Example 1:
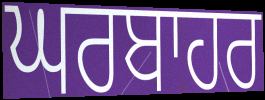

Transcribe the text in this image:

ਘਰਬਾਹਰ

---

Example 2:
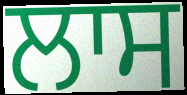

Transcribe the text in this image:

ਲਾਸ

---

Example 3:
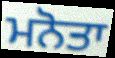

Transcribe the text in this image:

ਮਨੋਤਾ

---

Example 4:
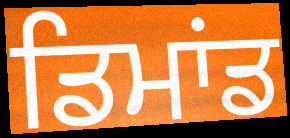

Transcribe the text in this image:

ਡਿਮਾਂਡ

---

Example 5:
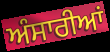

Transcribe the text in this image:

ਅੰਸਾਰੀਆਂ